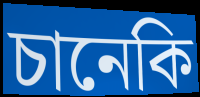
চানেকি